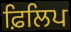
ਫ਼ਿਲਿਪ